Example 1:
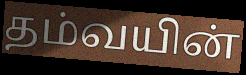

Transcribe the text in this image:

தம்வயின்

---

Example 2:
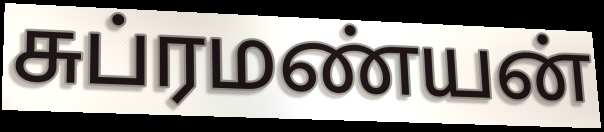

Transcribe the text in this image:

சுப்ரமண்யன்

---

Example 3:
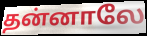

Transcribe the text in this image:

தன்னாலே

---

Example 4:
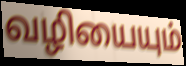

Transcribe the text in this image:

வழியையும்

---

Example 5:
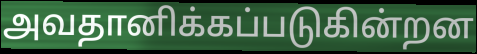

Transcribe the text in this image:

அவதானிக்கப்படுகின்றன